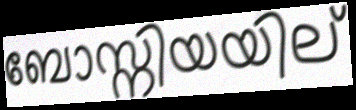
ബോസ്നിയയില്